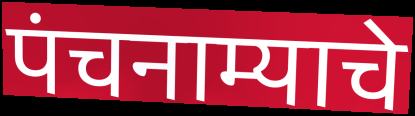
पंचनाम्याचे